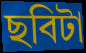
ছবিটা